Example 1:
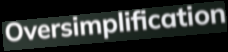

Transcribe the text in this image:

Oversimplification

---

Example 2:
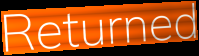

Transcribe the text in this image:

Returned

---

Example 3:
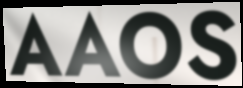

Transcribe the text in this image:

AAOS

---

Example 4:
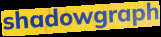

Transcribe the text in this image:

shadowgraph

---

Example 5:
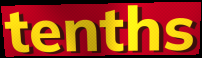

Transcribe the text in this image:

tenths